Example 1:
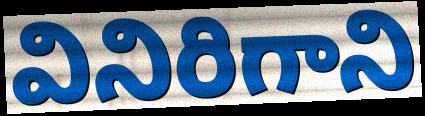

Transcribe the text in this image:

వినిరిగాని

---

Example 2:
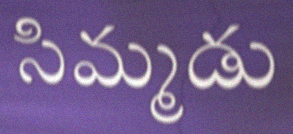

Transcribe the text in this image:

సిమ్మడు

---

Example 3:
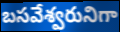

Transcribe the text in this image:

బసవేశ్వరునిగా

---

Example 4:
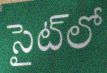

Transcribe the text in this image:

సైట్‌లో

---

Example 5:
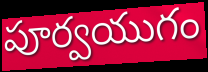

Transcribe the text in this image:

పూర్వయుగం